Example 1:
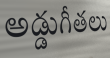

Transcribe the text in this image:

అడ్డుగీతలు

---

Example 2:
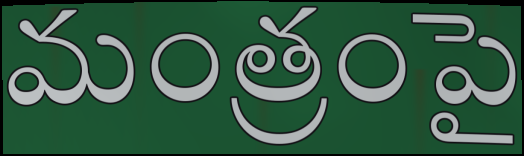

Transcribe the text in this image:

మంత్రంపై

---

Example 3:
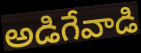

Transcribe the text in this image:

అడిగేవాడి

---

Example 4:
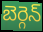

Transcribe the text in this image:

బెర్గెన్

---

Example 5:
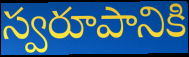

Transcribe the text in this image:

స్వరూపానికి